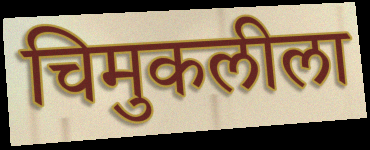
चिमुकलीला